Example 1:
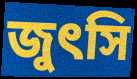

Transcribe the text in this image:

জুৎসি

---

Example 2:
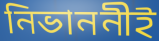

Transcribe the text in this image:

নিভাননীই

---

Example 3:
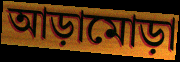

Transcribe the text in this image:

আড়ামোড়া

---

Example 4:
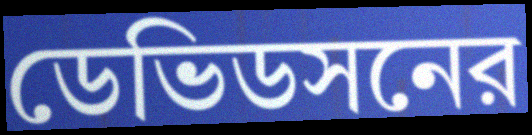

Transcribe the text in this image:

ডেভিডসনের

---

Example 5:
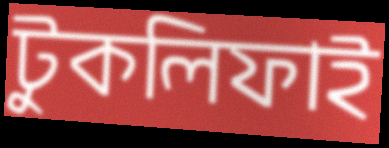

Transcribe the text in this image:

টুকলিফাই